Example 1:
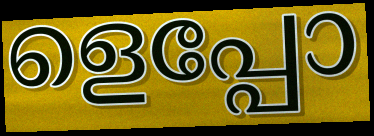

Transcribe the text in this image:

ളെപ്പോ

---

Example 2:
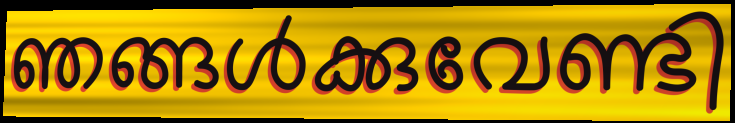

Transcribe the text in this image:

ഞങ്ങൾക്കുവേണ്ടി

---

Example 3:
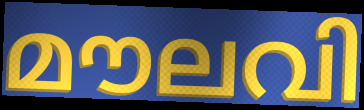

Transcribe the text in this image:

മൗലവി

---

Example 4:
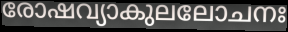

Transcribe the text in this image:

രോഷവ്യാകുലലോചനഃ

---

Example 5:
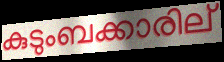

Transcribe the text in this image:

കുടുംബക്കാരില്